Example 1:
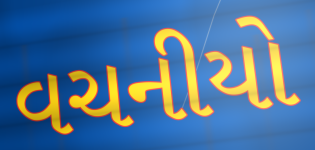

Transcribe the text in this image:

વચનીયો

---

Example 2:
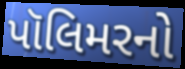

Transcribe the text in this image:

પૉલિમરનો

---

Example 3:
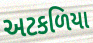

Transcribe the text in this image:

અટકળિયા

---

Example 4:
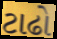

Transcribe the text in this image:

ટાઢો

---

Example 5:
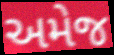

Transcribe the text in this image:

અમેજ